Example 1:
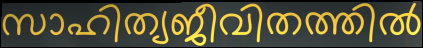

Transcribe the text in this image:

സാഹിത്യജീവിതത്തിൽ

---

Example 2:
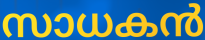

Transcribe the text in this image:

സാധകൻ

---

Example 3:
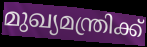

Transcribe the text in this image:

മുഖ്യമന്ത്രിക്ക്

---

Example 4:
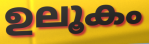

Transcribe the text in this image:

ഉലൂകം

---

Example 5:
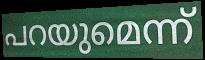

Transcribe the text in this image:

പറയുമെന്ന്